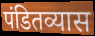
पंडितव्यास